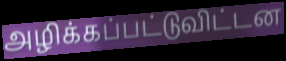
அழிக்கப்பட்டுவிட்டன